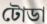
টোডা